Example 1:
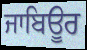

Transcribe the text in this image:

ਜਾਬਿਊਰ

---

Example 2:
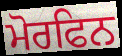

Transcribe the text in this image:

ਮੋਰਫਿਨ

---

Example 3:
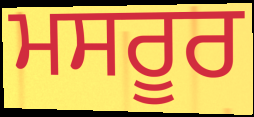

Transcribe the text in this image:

ਮਸਰੂਰ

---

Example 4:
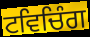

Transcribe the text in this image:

ਟਵਿਚਿੰਗ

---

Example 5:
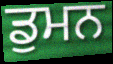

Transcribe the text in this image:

ਡੁਮਨ